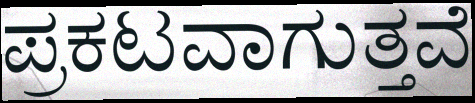
ಪ್ರಕಟವಾಗುತ್ತವೆ